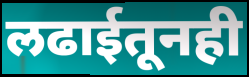
लढाईतूनही